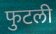
फुटली